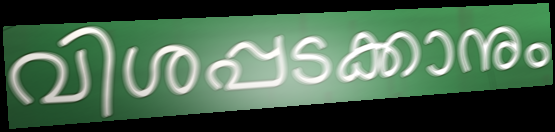
വിശപ്പടക്കാനും